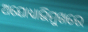
ଅଯୋଧ୍ୟାଭିମୁଖରେ